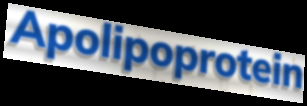
Apolipoprotein